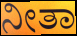
ನೀತಾ